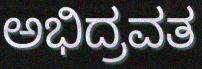
ಅಭಿದ್ರವತ